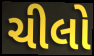
ચીલો